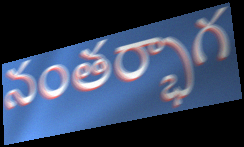
నంతర్భాగ